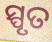
ସ୍ପୃତ